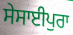
ਸੇਸਾਈਪੁਰਾ